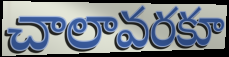
చాలావరకూ